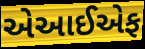
એઆઈએફ